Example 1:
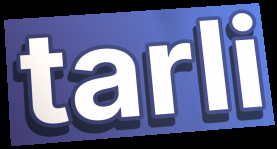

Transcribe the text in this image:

tarli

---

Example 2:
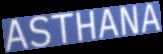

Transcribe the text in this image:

ASTHANA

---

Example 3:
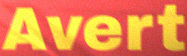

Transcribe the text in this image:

Avert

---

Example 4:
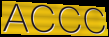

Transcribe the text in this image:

ACCC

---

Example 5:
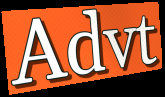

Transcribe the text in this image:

Advt